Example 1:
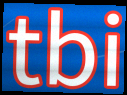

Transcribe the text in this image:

tbi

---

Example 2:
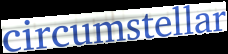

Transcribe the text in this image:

circumstellar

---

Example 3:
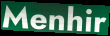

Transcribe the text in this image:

Menhir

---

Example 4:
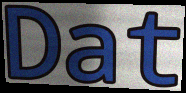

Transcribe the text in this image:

Dat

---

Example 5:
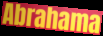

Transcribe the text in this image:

Abrahama